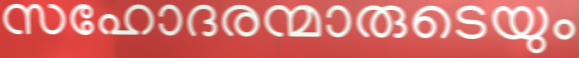
സഹോദരന്മാരുടെയും